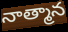
నాత్మాన